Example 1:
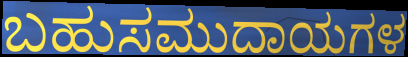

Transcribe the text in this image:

ಬಹುಸಮುದಾಯಗಳ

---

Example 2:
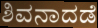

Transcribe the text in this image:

ಶಿವನಾದಡೆ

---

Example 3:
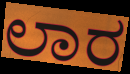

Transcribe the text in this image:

ಲಾರ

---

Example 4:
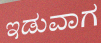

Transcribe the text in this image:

ಇಡುವಾಗ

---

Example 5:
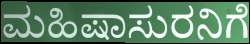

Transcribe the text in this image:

ಮಹಿಷಾಸುರನಿಗೆ